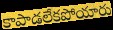
కాపాడలేకపోయారు